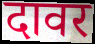
दावर